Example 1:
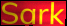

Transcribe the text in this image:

Sark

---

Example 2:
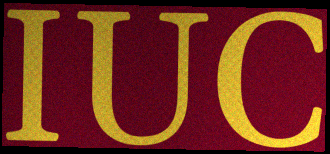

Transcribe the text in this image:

IUC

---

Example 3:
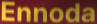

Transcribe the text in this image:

Ennoda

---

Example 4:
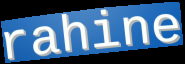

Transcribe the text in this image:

rahine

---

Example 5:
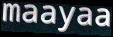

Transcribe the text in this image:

maayaa